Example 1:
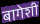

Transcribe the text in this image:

बागेशी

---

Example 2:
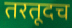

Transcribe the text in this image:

तरतूदच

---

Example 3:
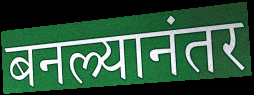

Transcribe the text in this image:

बनल्यानंतर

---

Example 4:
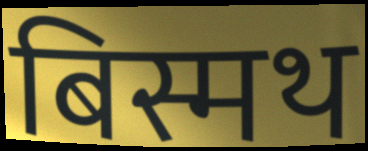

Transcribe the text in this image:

बिस्मथ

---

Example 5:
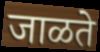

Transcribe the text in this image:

जाळते